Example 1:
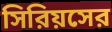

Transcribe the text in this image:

সিরিয়সের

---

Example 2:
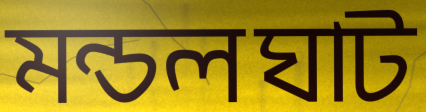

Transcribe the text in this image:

মন্ডলঘাট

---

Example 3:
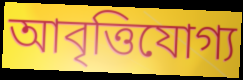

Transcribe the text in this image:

আবৃত্তিযোগ্য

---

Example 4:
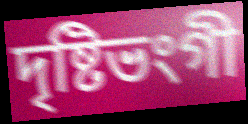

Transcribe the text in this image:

দৃষ্টিভংগী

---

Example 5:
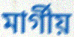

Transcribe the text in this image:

মার্গীয়